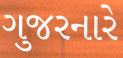
ગુજરનારે